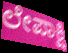
ಲೇಪಾಕ್ಷಿ